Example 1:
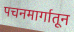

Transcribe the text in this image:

पचनमार्गातून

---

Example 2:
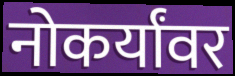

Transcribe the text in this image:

नोकर्यांवर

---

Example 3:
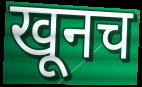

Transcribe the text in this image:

खूनच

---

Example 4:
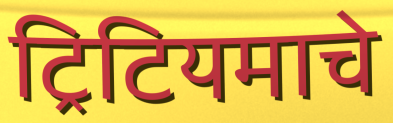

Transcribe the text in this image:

ट्रिटियमाचे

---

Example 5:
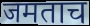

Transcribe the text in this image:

जमताच